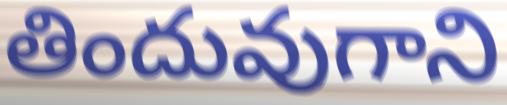
తిందువుగాని